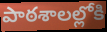
పాఠశాలల్లోకి